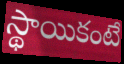
స్థాయికంటే